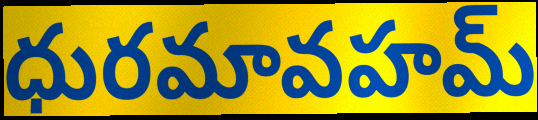
ధురమావహమ్